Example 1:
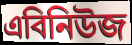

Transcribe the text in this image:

এবিনিউজ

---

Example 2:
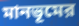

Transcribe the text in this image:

মানভূমের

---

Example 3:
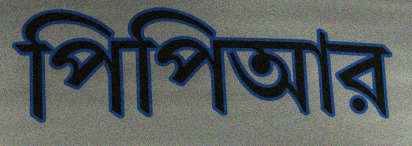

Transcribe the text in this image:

পিপিআর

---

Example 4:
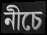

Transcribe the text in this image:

নীচে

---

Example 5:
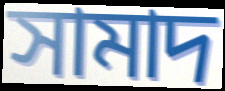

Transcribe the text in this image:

সামাদ